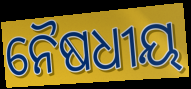
ନୈଷଧୀୟ